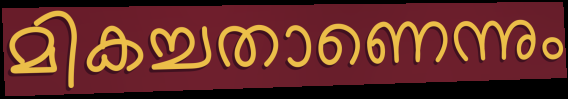
മികച്ചതാണെന്നും